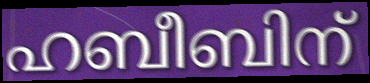
ഹബീബിന്